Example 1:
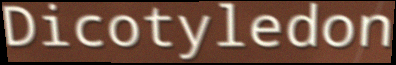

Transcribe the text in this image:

Dicotyledon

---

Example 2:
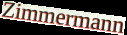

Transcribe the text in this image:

Zimmermann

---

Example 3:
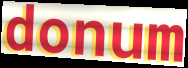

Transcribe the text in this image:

donum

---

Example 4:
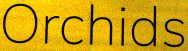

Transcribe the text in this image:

Orchids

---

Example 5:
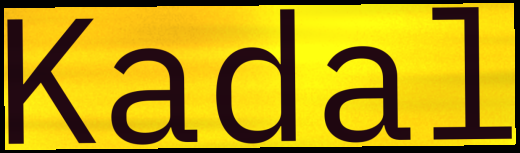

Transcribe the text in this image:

Kadal